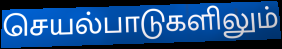
செயல்பாடுகளிலும்